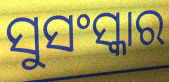
ସୁସଂସ୍କାର